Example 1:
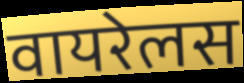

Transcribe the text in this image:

वायरेलस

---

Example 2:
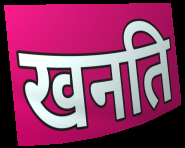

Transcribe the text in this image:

खनति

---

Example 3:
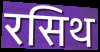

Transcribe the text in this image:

रसिथ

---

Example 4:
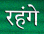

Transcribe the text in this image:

रहंगे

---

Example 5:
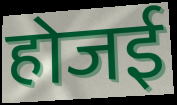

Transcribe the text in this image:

होजई